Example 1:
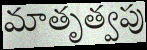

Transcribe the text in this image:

మాతృత్వపు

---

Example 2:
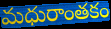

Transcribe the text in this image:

మధురాంతకం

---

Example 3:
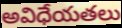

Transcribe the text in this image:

అవిధేయతలు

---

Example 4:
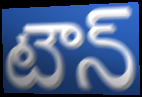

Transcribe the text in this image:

టౌన్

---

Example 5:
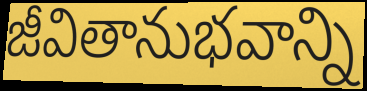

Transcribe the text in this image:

జీవితానుభవాన్ని